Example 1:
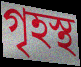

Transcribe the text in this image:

গৃহস্থ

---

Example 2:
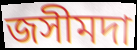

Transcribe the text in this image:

জসীমদা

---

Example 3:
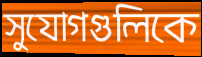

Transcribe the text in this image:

সুযোগগুলিকে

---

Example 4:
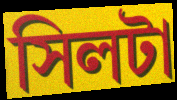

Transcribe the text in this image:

সিলটা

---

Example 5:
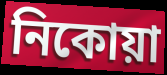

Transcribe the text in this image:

নিকোয়া